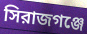
সিরাজগঞ্জে